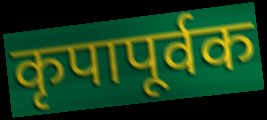
कृपापूर्वक